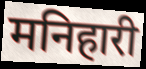
मनिहारी